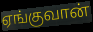
ஏங்குவான்